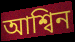
আশ্বিন